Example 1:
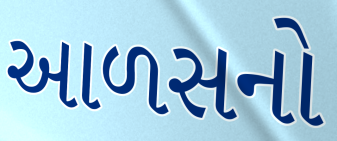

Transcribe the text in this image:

આળસનો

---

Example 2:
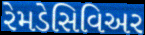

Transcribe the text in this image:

રેમડેસિવિઅર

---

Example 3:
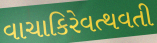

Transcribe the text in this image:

વાચાકિરેવત્થવતી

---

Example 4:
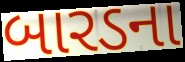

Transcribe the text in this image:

બારડના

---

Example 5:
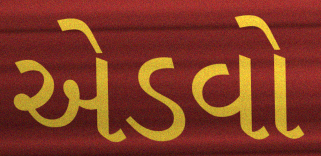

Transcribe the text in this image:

એડવો